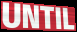
UNTIL